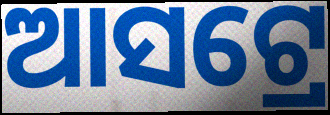
ଆସଟ୍ରେ